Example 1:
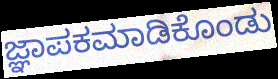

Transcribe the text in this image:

ಜ್ಞಾಪಕಮಾಡಿಕೊಂಡು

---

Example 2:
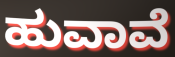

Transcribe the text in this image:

ಹುವಾವೆ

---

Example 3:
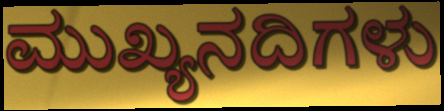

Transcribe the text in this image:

ಮುಖ್ಯನದಿಗಳು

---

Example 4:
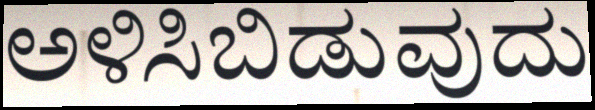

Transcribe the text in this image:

ಅಳಿಸಿಬಿಡುವುದು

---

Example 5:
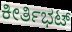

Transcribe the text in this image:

ಕೀರ್ತಿಭಟ್